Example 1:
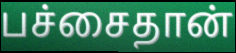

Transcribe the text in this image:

பச்சைதான்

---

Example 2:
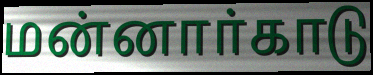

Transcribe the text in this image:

மன்னார்காடு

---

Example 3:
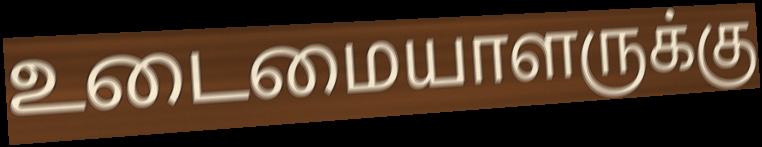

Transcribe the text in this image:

உடைமையாளருக்கு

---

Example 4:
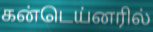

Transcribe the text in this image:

கன்டெய்னரில்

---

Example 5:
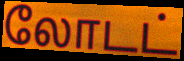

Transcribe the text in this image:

லோடட்